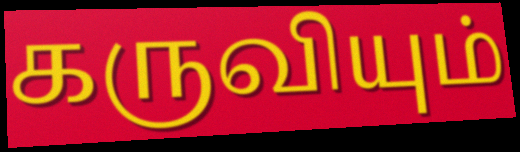
கருவியும்